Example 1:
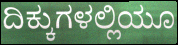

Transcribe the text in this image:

ದಿಕ್ಕುಗಳಲ್ಲಿಯೂ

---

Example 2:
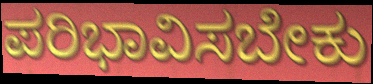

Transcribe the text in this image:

ಪರಿಭಾವಿಸಬೇಕು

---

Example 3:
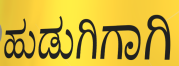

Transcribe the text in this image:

ಹುಡುಗಿಗಾಗಿ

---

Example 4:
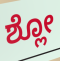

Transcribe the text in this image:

ಶ್ಲೋ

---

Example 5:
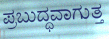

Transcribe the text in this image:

ಪ್ರಬುದ್ಧವಾಗುತ್ತ